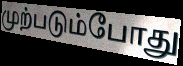
முற்படும்போது